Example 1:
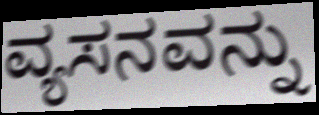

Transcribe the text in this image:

ವ್ಯಸನವನ್ನು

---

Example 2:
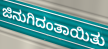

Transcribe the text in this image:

ಜಿನುಗಿದಂತಾಯಿತು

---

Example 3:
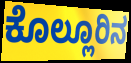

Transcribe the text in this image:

ಕೊಲ್ಲೂರಿನ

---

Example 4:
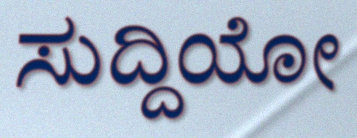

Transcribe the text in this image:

ಸುದ್ದಿಯೋ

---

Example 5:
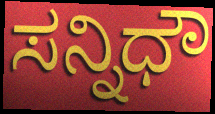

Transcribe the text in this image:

ಸನ್ನಿಧೌ